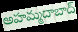
అహమ్మదాబాద్